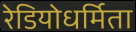
रेडियोधर्मिता